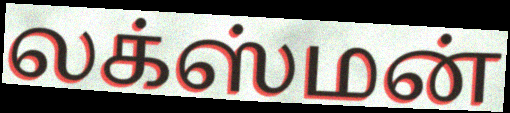
லக்ஸ்மன்